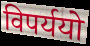
विपर्ययो